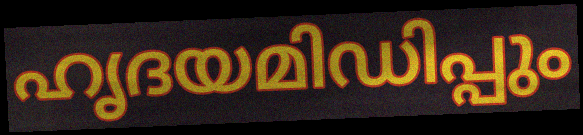
ഹൃദയമിഡിപ്പും